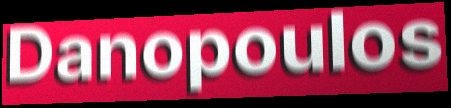
Danopoulos